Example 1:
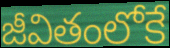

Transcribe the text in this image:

జీవితంలోకే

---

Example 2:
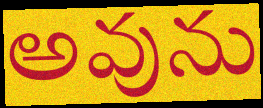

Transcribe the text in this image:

అవును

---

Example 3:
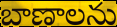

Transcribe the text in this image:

బాణాలను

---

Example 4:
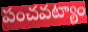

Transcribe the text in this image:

పంచవట్యాం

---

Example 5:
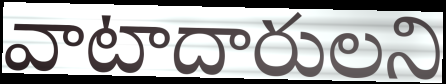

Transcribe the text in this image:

వాటాదారులని